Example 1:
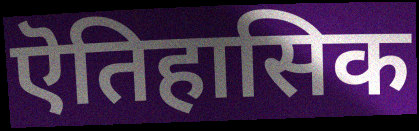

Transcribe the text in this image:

ऎतिहासिक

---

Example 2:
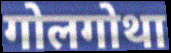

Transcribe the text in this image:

गोलगोथा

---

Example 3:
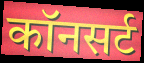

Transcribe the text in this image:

कॉनसर्ट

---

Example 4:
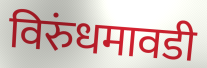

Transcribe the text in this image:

विरुंधमावडी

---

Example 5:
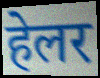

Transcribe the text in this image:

हेलर